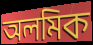
অলমিক